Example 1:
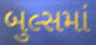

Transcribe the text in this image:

બુલ્સમાં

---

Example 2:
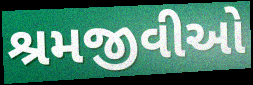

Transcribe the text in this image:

શ્રમજીવીઓ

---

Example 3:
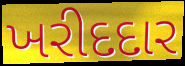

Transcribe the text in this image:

ખરીદદાર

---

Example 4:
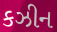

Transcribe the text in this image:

કઝીન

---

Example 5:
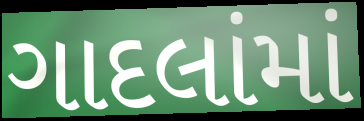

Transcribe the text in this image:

ગાદલાંમાં